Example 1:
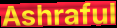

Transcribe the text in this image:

Ashraful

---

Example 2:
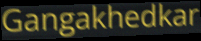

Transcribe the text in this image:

Gangakhedkar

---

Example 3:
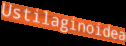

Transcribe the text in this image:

Ustilaginoidea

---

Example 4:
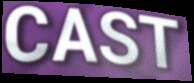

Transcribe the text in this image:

CAST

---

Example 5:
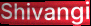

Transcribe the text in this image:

Shivangi